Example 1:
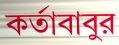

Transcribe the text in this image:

কর্তাবাবুর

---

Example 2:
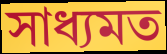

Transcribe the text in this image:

সাধ্যমত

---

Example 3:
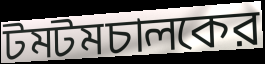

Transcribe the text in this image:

টমটমচালকের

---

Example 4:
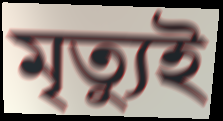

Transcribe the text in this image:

মৃত্যুই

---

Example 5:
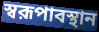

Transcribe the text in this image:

স্বরূপাবস্থান